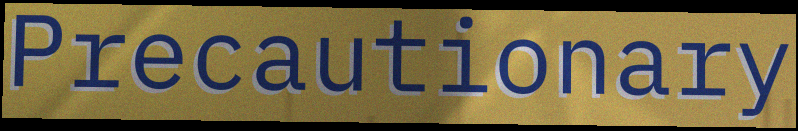
Precautionary